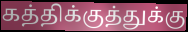
கத்திக்குத்துக்கு